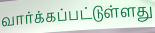
வார்க்கப்பட்டுள்ளது